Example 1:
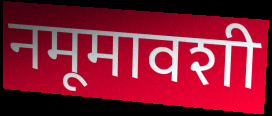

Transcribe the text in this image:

नमूमावशी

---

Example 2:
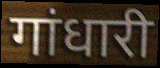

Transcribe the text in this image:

गांधारी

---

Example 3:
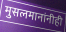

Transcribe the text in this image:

मुसलमानांनीही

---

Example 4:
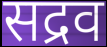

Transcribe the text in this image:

सद्रव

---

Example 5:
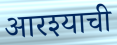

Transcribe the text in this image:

आरश्याची